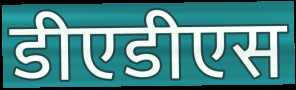
डीएडीएस